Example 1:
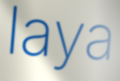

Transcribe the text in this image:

laya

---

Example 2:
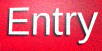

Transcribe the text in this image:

Entry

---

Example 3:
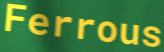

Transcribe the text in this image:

Ferrous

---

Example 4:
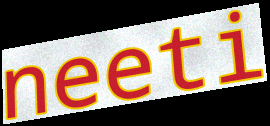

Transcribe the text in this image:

neeti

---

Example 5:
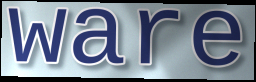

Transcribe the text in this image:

ware